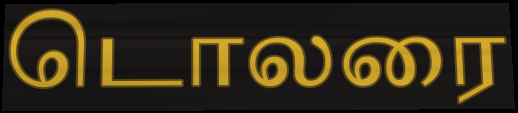
டொலரை